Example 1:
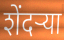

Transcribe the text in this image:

शेंदर्‍या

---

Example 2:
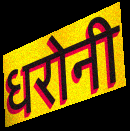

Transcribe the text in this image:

धरोनी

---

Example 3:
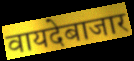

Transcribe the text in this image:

वायदेबाजार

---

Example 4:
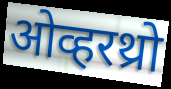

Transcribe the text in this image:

ओव्हरथ्रो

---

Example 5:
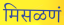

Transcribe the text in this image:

मिसळणं